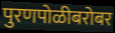
पुरणपोळीबरोबर